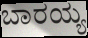
ಬಾರಯ್ಯ